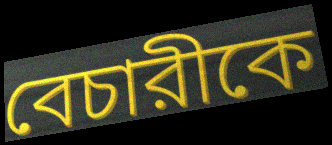
বেচারীকে